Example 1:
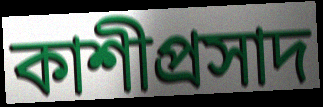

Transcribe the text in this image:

কাশীপ্রসাদ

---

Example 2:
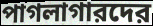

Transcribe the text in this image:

পাগলাগারদের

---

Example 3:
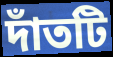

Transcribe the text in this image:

দাঁতটি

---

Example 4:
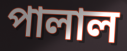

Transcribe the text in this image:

পালাল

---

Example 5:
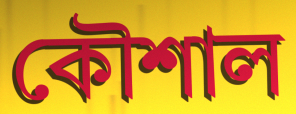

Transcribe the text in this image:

কৌশাল